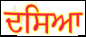
ਦਸਿਆ